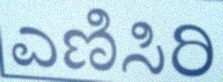
ಎಣಿಸಿರಿ